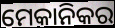
ମେକାନିକର